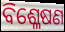
ବିଶ୍ଳେଷଣ